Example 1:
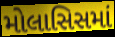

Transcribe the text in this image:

મોલાસિસમાં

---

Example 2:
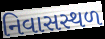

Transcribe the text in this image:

નિવાસસ્થળ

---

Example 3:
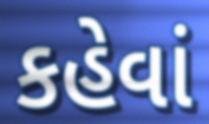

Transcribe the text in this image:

કહેવાં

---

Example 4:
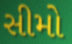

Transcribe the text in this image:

સીમો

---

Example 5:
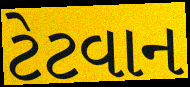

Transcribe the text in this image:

ટેટવાન